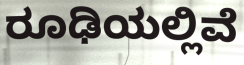
ರೂಢಿಯಲ್ಲಿವೆ